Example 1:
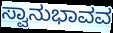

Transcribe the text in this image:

ಸ್ವಾನುಭಾವವ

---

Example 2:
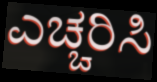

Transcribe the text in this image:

ಎಚ್ಚರಿಸಿ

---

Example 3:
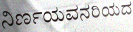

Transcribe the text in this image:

ನಿರ್ಣಯವನರಿಯದ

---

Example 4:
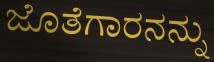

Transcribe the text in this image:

ಜೊತೆಗಾರನನ್ನು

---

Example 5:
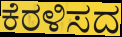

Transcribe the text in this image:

ಕೆರಳಿಸದ